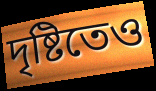
দৃষ্টিতেও